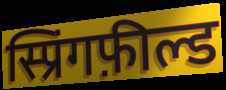
स्प्रिंगफ़ील्ड